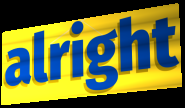
alright